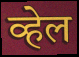
व्हेल